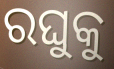
ରଘୁକୁ